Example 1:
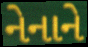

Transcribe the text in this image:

નેનાને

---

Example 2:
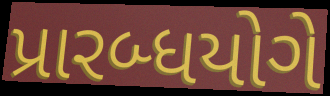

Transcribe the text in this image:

પ્રારબ્ધયોગે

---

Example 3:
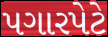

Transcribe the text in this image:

પગારપેટે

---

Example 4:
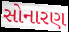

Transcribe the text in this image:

સોનારણ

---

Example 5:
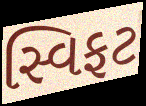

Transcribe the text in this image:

સ્વિફટ